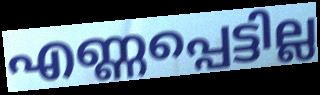
എണ്ണപ്പെട്ടില്ല